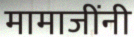
मामाजींनी